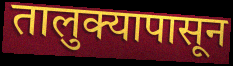
तालुक्यापासून